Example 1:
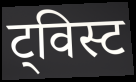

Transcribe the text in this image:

ट्विस्ट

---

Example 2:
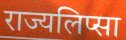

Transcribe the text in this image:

राज्यलिप्सा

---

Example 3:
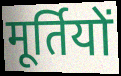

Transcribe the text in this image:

मूर्तियों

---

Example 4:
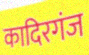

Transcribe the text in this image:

कादिरगंज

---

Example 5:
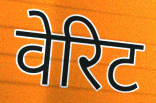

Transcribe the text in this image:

वेरिट